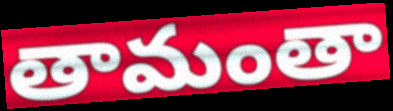
తామంతా